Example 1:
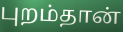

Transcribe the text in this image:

புறம்தான்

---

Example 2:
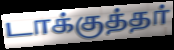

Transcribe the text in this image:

டாக்குத்தர்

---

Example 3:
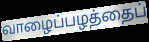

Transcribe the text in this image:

வாழைப்பழத்தைப்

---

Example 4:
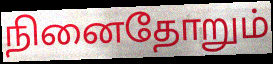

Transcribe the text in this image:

நினைதோறும்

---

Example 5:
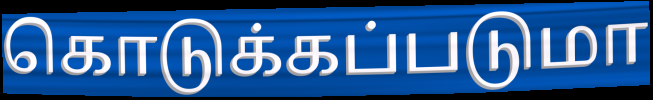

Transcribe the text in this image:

கொடுக்கப்படுமா